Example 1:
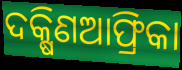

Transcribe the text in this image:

ଦକ୍ଷିଣଆଫ୍ରିକା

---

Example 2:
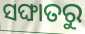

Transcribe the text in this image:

ସଙ୍ଘାତରୁ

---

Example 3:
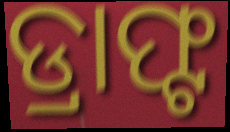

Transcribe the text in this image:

ଡ୍ରାଫ୍ଟ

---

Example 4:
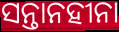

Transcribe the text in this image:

ସନ୍ତାନହୀନା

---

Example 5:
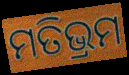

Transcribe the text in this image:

ମତିଭ୍ରମ